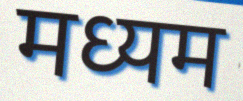
मध्यम